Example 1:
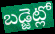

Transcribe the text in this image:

బడ్జెట్లో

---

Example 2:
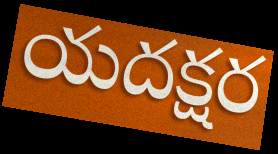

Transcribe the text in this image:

యదక్షర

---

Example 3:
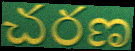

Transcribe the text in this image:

చరణ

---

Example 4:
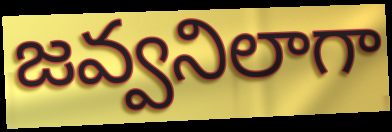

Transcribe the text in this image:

జవ్వనిలాగా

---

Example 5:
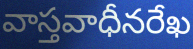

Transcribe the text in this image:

వాస్తవాధీనరేఖ